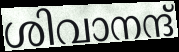
ശിവാനന്ദ്